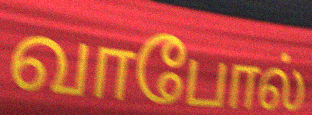
வாபோல்